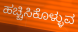
ಹಚ್ಚಿಸಿಕೊಳ್ಳುವ